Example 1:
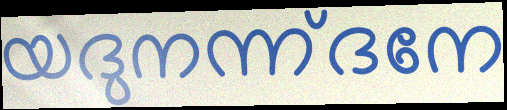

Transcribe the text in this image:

യദുനന്ന്ദനേ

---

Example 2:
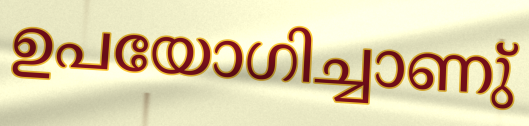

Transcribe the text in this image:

ഉപയോഗിച്ചാണു്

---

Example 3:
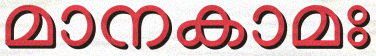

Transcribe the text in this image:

മാനകാമഃ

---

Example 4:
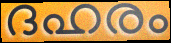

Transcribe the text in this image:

ദഹരം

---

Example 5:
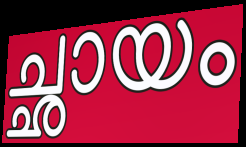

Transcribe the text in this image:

ച്ഛായം